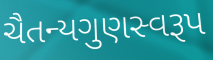
ચૈતન્યગુણસ્વરૂપ